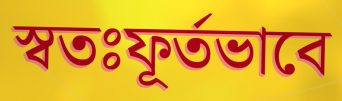
স্বতঃফূর্তভাবে